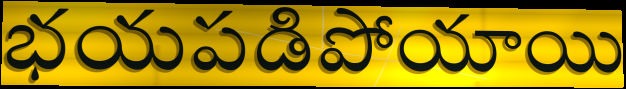
భయపడిపోయాయి